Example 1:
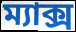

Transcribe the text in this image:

ম্যাক্স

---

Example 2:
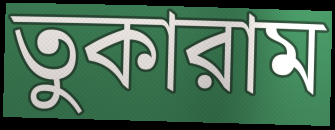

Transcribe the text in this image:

তুকারাম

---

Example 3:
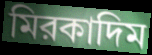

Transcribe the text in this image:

মিরকাদিম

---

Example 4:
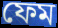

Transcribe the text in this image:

ফেম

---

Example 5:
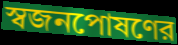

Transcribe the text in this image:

স্বজনপোষণের